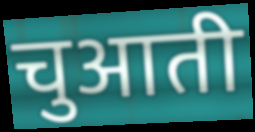
चुआती